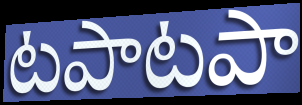
టపాటపా